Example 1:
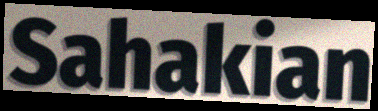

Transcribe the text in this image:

Sahakian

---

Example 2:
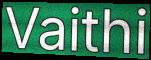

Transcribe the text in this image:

Vaithi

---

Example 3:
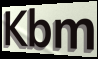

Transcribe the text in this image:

Kbm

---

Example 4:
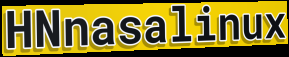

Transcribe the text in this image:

HNnasalinux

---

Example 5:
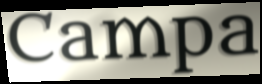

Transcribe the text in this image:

Campa